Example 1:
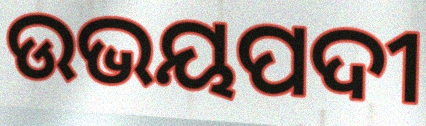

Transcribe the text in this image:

ଉଭୟପଦୀ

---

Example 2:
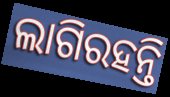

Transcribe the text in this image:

ଲାଗିରହନ୍ତି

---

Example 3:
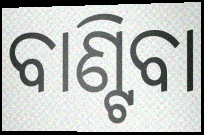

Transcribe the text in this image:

ବାଣ୍ଟିବା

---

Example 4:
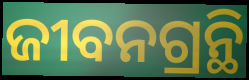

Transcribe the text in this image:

ଜୀବନଗ୍ରନ୍ଥି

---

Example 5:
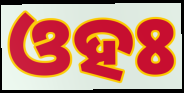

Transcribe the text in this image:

ଓହଃ